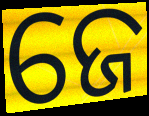
ଜେ